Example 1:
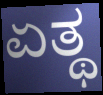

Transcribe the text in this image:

ಏತ್ಥ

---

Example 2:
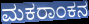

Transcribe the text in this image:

ಮಕರಾಂಕನ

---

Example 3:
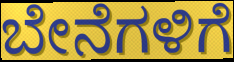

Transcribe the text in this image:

ಬೇನೆಗಳಿಗೆ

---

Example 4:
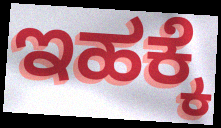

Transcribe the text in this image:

ಇಹಕ್ಕೆ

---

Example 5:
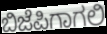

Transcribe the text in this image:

ಬಿಜೆಪಿಗಾಗಲಿ